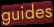
guides